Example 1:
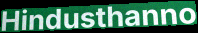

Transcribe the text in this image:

Hindusthanno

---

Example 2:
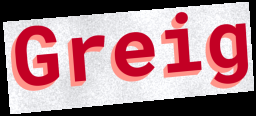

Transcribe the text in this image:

Greig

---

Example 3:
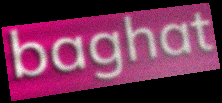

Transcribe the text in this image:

baghat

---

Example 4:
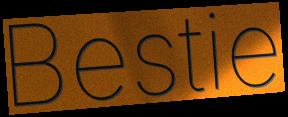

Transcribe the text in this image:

Bestie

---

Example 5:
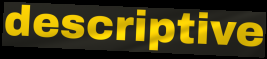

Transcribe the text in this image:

descriptive